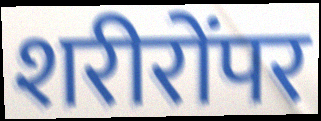
शरीरोंपर